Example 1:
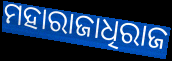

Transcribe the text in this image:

ମହାରାଜାଧିରାଜ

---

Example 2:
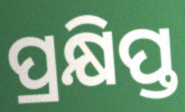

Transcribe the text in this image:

ପ୍ରକ୍ଷିପ୍ତ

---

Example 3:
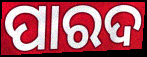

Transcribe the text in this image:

ପାରଦ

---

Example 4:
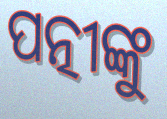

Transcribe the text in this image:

ପତ୍ନୀଙ୍କୁ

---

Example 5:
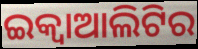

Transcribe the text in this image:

ଇକ୍ୱାଆଲିଟିର